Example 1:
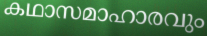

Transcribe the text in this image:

കഥാസമാഹാരവും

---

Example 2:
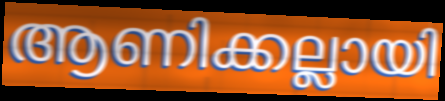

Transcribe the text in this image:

ആണിക്കല്ലായി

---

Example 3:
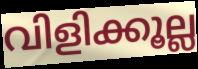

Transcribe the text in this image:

വിളിക്കൂല്ല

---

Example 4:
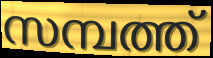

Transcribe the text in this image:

സമ്പത്ത്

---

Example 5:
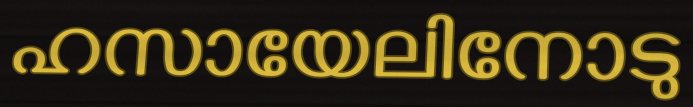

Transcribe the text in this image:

ഹസായേലിനോടു